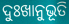
ଦୁଃଖାନୁଭୂତି